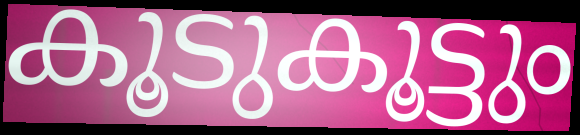
കൂടുകൂട്ടും